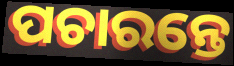
ପଚାରନ୍ତେ